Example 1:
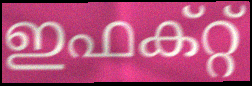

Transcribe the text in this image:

ഇഫക്റ്റ്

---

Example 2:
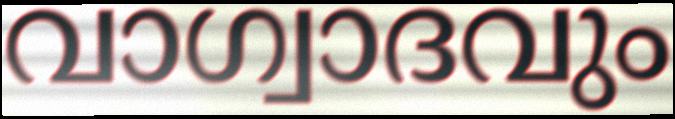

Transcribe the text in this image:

വാഗ്വാദവും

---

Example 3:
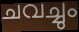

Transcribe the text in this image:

ചവച്ചും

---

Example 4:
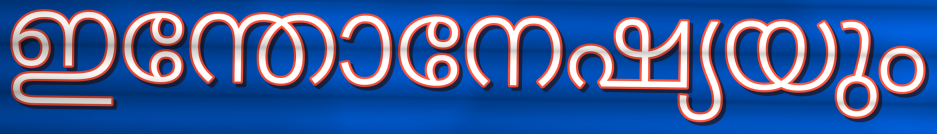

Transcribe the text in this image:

ഇന്തോനേഷ്യയും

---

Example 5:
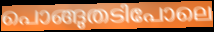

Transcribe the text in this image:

പൊങ്ങുതടിപോലെ